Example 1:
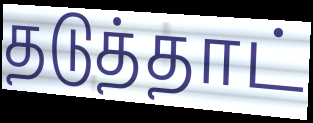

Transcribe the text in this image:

தடுத்தாட்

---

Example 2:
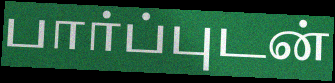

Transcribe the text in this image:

பார்ப்புடன்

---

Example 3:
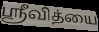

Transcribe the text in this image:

ஸ்ரீவித்யை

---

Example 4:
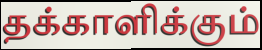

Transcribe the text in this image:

தக்காளிக்கும்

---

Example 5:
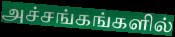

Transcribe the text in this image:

அச்சங்கங்களில்